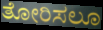
ತೋರಿಸಲೂ